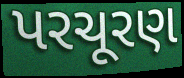
પરચૂરણ